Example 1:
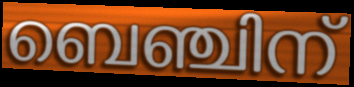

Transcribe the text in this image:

ബെഞ്ചിന്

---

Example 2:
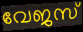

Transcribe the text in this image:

വേജസ്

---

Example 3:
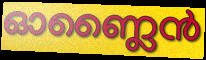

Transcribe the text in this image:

ഓണ്ലൈൻ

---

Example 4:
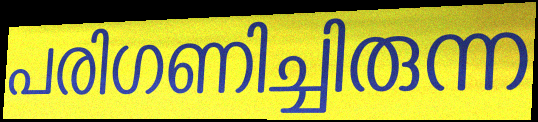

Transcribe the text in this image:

പരിഗണിച്ചിരുന്ന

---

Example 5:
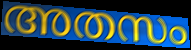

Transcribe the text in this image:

അതസം